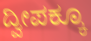
ದ್ವೀಪಕ್ಕೂ